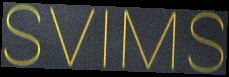
SVIMS